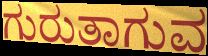
ಗುರುತಾಗುವ